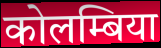
कोलम्बिया